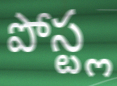
పోస్ట్ల